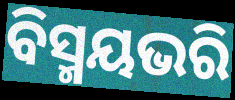
ବିସ୍ମୟଭରି